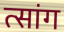
त्सांग